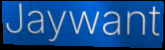
Jaywant